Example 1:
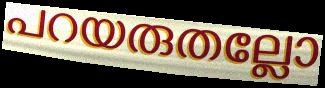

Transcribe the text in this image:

പറയരുതല്ലോ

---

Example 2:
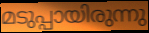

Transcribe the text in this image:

മടുപ്പായിരുന്നു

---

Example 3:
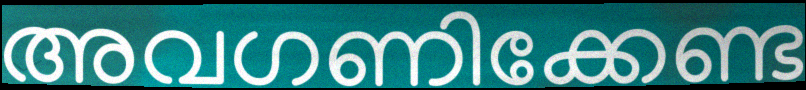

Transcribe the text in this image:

അവഗണിക്കേണ്ട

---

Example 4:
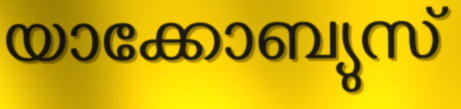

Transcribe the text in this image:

യാക്കോബ്യുസ്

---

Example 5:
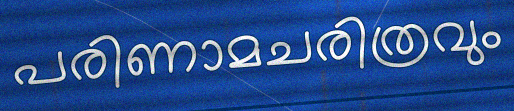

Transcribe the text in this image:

പരിണാമചരിത്രവും